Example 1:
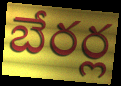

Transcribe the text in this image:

బేరర్ల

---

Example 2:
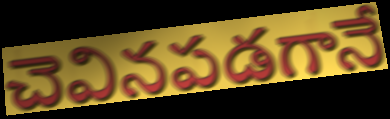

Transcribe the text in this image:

చెవినపడగానే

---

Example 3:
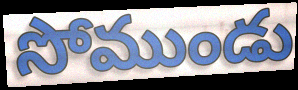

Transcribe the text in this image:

సోముండు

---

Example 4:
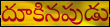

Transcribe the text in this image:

దూకినపుడు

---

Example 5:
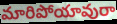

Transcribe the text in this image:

మారిపోయావురా